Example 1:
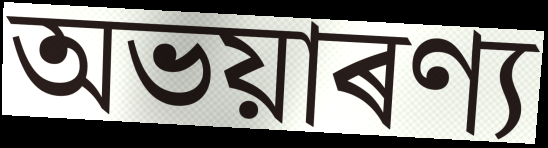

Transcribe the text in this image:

অভয়াৰণ্য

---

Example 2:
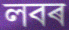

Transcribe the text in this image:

লবৰ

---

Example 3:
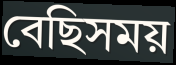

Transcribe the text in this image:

বেছিসময়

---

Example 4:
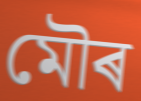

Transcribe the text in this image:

মৌৰ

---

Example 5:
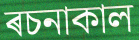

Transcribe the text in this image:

ৰচনাকাল